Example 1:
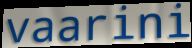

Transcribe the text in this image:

vaarini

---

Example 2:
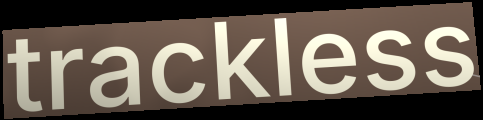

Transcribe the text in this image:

trackless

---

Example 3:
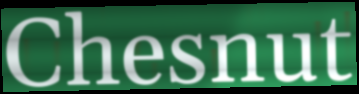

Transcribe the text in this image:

Chesnut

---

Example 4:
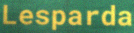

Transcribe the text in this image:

Lesparda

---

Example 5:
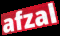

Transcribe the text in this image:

afzal